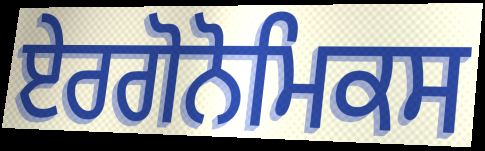
ਏਰਗੋਨੋਮਿਕਸ